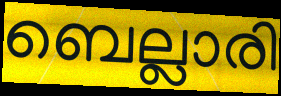
ബെല്ലാരി